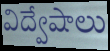
విద్వేషాలు